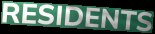
RESIDENTS